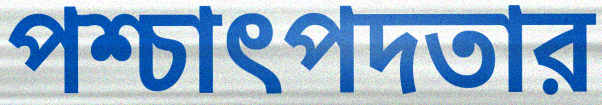
পশ্চাৎপদতার